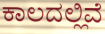
ಕಾಲದಲ್ಲಿವೆ